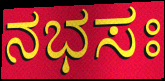
ನಭಸಃ